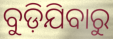
ବୁଡ଼ିଯିବାରୁ